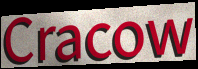
Cracow